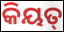
କିୟତ୍